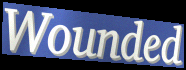
Wounded